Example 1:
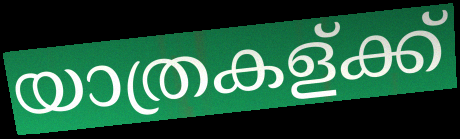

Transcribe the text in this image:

യാത്രകള്ക്ക്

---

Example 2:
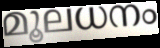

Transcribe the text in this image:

മൂലധനം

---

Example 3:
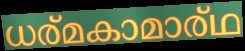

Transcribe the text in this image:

ധര്മകാമാര്ഥ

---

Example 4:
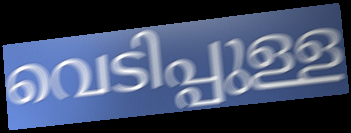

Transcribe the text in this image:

വെടിപ്പുള്ള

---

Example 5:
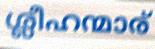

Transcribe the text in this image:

ശ്ലീഹന്മാര്